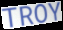
TROY